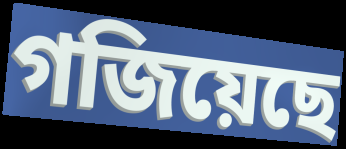
গজিয়েছে